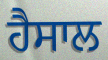
ਹੈਸਾਲ